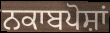
ਨਕਾਬਪੋਸ਼ਾਂ